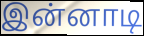
இன்னாடி